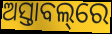
ଅସ୍ତାବଲ୍‌ରେ